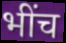
भींच